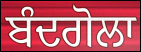
ਬੰਦਗੋਲਾ